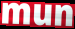
mun